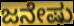
ಜನೇಷು